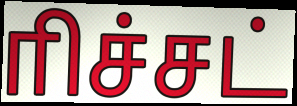
ரிச்சட்